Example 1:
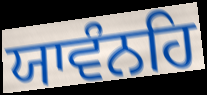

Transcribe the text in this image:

ਯਾਵੰਨਹਿ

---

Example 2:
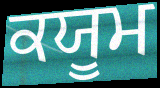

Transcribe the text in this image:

ਕਯੂਮ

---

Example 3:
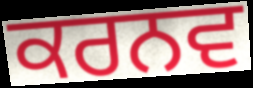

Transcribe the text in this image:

ਕਰਨਵ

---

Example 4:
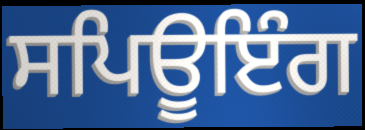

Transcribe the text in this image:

ਸਪਿਊਇੰਗ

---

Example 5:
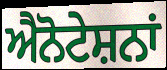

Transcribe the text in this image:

ਐਨੋਟੇਸ਼ਨਾਂ